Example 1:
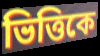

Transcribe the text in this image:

ভিত্তিকে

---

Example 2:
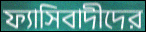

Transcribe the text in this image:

ফ্যাসিবাদীদের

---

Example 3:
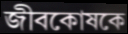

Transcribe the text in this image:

জীবকোষকে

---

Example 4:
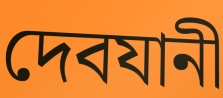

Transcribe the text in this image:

দেবযানী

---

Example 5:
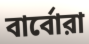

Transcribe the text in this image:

বার্বোরা